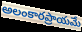
అలంకారప్రాయమే